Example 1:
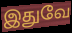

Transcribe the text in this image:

இதுவே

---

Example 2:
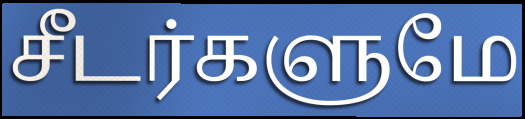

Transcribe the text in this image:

சீடர்களுமே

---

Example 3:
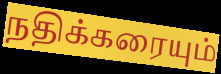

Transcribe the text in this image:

நதிக்கரையும்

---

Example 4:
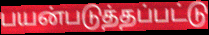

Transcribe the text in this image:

பயன்படுத்தப்பட்டு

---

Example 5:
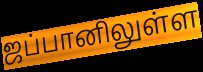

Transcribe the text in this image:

ஜப்பானிலுள்ள